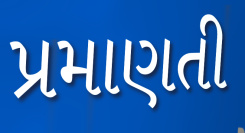
પ્રમાણતી